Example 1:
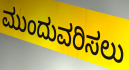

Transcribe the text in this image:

ಮುಂದುವರಿಸಲು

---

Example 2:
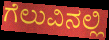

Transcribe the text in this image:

ಗೆಲುವಿನಲ್ಲಿ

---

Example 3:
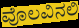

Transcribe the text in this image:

ವೊಲವಿನಲಿ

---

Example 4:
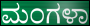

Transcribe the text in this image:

ಮಂಗಳಾ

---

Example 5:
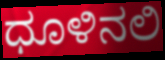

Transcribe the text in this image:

ಧೂಳಿನಲಿ